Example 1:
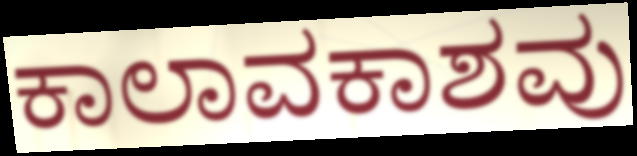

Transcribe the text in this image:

ಕಾಲಾವಕಾಶವು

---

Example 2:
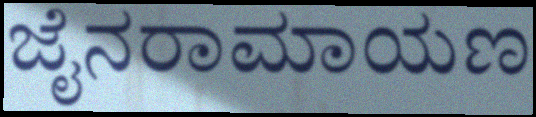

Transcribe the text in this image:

ಜೈನರಾಮಾಯಣ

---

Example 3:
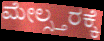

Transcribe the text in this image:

ಮೇಲ್ಸ್ತರಕ್ಕೆ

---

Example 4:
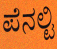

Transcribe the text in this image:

ಪೆನಲ್ಟಿ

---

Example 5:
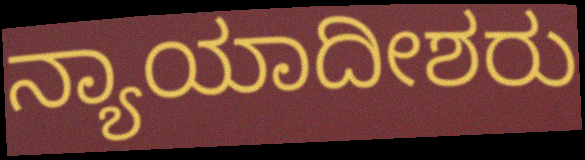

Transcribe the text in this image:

ನ್ಯಾಯಾದೀಶರು